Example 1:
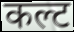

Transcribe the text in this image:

कल्ट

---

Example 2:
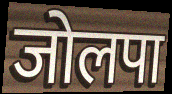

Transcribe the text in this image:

जोलपा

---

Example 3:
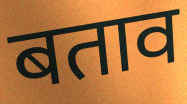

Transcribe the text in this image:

बताव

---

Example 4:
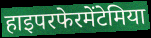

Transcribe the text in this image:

हाइपरफेरमेंटेमिया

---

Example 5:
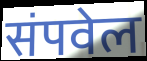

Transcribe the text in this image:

संपवेल